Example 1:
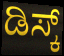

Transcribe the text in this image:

ಡಿಸ್ಕ್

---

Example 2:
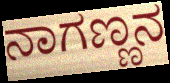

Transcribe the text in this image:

ನಾಗಣ್ಣನ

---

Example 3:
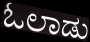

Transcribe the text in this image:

ಓಲಾಡು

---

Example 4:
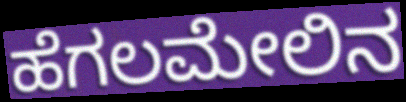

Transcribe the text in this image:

ಹೆಗಲಮೇಲಿನ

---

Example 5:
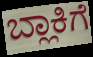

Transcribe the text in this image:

ಬ್ಲಾಕಿಗೆ